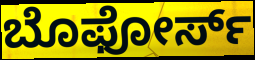
ಬೊಫೋರ್ಸ್